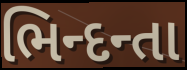
ભિન્દન્તા